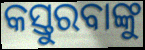
କସ୍ତୁରବାଙ୍କୁ